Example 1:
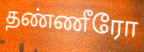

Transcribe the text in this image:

தண்ணீரோ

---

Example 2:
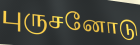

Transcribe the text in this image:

புருசனோடு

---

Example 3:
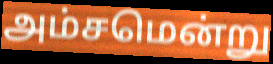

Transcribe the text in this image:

அம்சமென்று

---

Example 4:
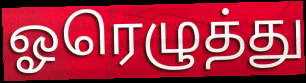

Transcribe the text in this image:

ஓரெழுத்து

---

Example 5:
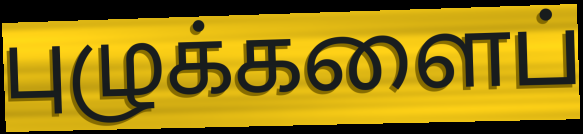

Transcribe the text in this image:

புழுக்களைப்